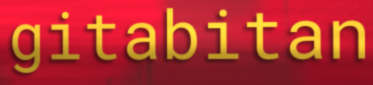
gitabitan